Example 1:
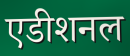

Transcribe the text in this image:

एडीशनल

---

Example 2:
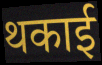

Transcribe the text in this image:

थकाई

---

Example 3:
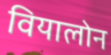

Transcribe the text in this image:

वियालोन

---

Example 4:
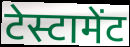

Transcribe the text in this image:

टेस्टामेंट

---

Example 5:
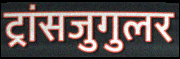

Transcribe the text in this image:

ट्रांसजुगुलर